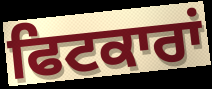
ਫਿਟਕਾਰਾਂ